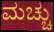
ಮಚ್ಚು